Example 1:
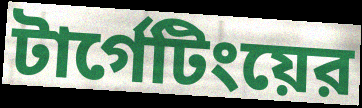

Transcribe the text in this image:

টার্গেটিংয়ের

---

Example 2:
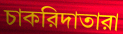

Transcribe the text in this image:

চাকরিদাতারা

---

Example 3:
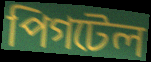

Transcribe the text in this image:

পিগটেল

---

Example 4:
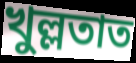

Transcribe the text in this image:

খুল্লতাত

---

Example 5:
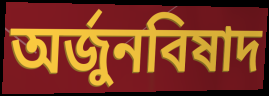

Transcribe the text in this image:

অর্জুনবিষাদ